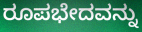
ರೂಪಭೇದವನ್ನು